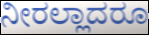
ನೀರಲ್ಲಾದರೂ